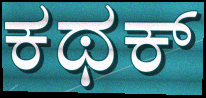
ಕಥಕ್